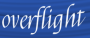
overflight